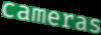
cameras